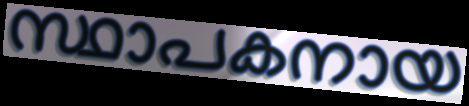
സ്ഥാപകനായ